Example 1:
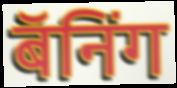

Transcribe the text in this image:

बॅनिंग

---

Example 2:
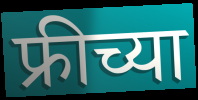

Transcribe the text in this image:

फ्रीच्या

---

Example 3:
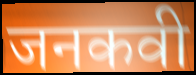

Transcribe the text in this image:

जनकवी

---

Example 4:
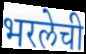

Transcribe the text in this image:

भरलेची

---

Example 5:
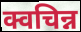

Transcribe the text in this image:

क्वचिन्न